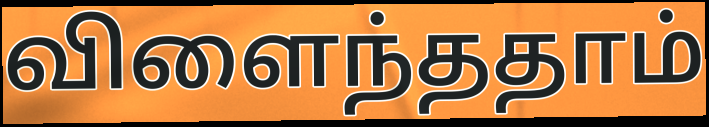
விளைந்ததாம்